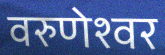
वरुणेश्वर